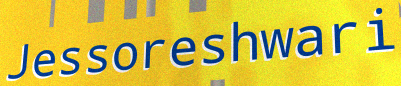
Jessoreshwari